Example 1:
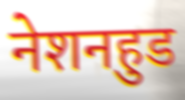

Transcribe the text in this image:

नेशनहुड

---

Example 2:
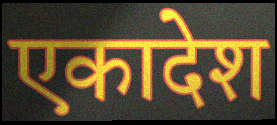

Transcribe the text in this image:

एकादेश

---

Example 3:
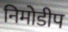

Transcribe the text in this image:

निमोडीप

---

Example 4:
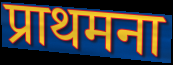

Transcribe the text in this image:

प्राथमना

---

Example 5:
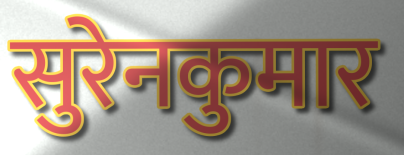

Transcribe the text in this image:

सुरेनकुमार